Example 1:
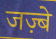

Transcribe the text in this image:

जज़्बे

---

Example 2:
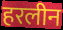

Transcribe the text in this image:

हरलीन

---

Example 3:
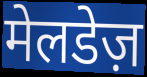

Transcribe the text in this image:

मेलडेज़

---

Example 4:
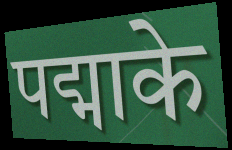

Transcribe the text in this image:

पद्माके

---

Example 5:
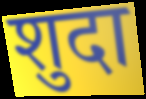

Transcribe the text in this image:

शुदा